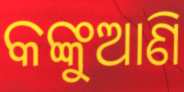
କଙ୍କୁଆଣି